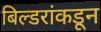
बिल्डरांकडून